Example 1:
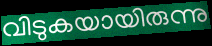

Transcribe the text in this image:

വിടുകയായിരുന്നു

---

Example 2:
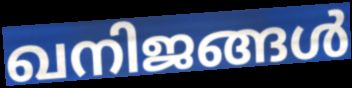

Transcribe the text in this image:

ഖനിജങ്ങൾ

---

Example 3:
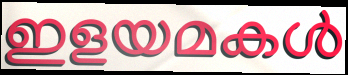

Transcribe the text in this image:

ഇളയമകൾ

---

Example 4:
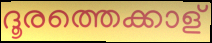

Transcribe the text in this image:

ദൂരത്തെക്കാള്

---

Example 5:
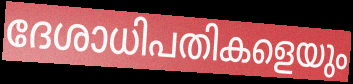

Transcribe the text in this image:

ദേശാധിപതികളെയും